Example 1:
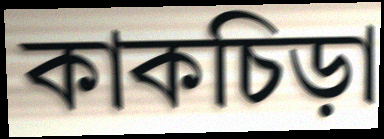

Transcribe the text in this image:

কাকচিড়া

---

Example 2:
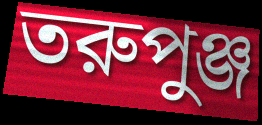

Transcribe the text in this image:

তরুপুঞ্জ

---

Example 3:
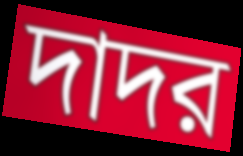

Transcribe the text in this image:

দাদর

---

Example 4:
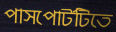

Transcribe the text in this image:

পাসপোর্টটিতে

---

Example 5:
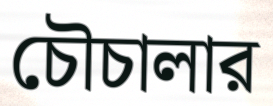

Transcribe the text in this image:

চৌচালার